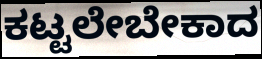
ಕಟ್ಟಲೇಬೇಕಾದ